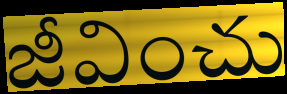
జీవించు